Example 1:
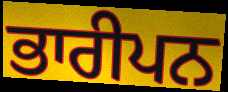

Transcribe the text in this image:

ਭਾਰੀਪਨ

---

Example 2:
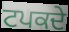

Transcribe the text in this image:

ਟਪਕਦੇ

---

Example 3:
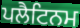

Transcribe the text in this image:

ਪਲੈਟਿਨਮ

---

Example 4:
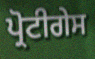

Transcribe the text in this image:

ਪ੍ਰੋਟੀਗੇਸ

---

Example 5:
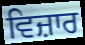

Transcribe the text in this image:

ਵਿਜ਼ਾਰ